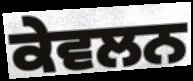
ਕੇਵਲਨ